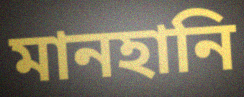
মানহানি